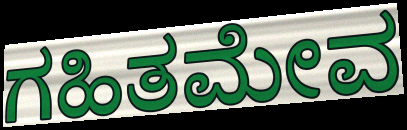
ಗಹಿತಮೇವ